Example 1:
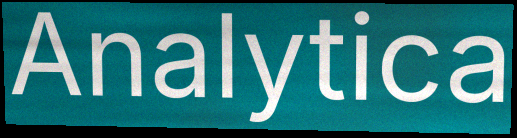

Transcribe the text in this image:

Analytica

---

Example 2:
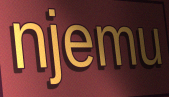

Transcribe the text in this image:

njemu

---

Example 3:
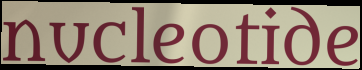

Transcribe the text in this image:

nucleotide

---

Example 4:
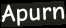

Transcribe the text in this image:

Apurn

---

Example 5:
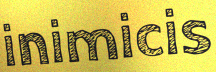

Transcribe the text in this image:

inimicis